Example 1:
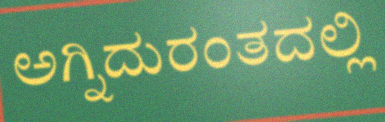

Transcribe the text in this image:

ಅಗ್ನಿದುರಂತದಲ್ಲಿ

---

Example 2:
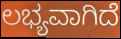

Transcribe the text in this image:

ಲಭ್ಯವಾಗಿದೆ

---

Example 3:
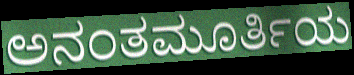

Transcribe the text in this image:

ಅನಂತಮೂರ್ತಿಯ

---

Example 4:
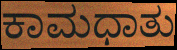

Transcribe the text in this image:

ಕಾಮಧಾತು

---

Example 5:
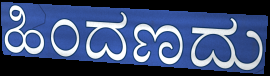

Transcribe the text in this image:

ಹಿಂದಣದು